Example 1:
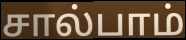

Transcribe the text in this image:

சால்பாம்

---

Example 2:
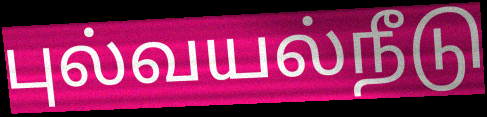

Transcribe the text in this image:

புல்வயல்நீடு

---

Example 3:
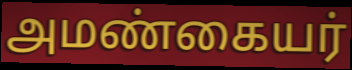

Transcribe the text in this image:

அமண்கையர்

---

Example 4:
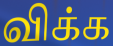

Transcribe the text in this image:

விக்க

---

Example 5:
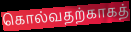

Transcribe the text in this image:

கொல்வதற்காகத்